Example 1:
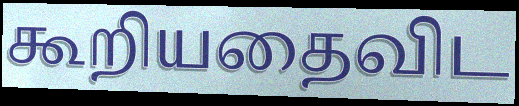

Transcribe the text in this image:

கூறியதைவிட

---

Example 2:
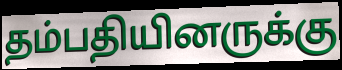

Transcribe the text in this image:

தம்பதியினருக்கு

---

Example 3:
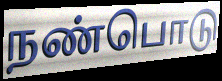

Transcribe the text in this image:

நண்பொடு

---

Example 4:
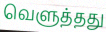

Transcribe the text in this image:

வெளுத்தது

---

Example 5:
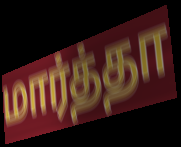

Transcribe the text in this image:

மார்த்தா